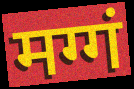
मग्गं